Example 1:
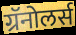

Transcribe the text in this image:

ग्रॅनोलर्स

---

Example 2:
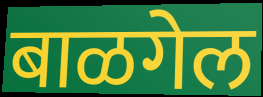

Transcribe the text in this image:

बाळगेल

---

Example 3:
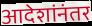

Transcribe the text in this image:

आदेशांनंतर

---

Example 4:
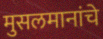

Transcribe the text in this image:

मुसलमानांचे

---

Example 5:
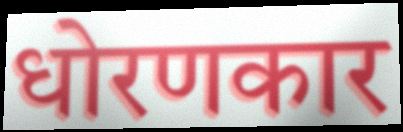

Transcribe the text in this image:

धोरणकार